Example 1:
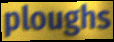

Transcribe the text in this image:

ploughs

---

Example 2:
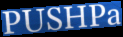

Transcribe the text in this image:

PUSHPa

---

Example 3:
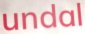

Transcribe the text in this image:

undal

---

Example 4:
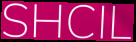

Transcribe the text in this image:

SHCIL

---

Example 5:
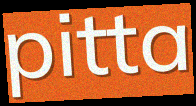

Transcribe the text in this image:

pitta